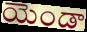
యెండా